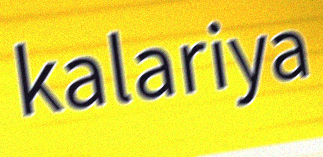
kalariya